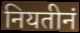
नियतीनं